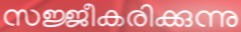
സജ്ജീകരിക്കുന്നു